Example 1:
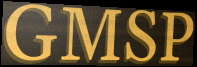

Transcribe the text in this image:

GMSP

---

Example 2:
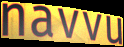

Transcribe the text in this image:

navvu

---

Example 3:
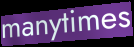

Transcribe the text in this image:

manytimes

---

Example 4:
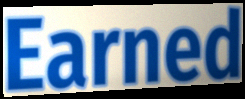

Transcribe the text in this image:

Earned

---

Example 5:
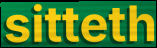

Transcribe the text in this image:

sitteth